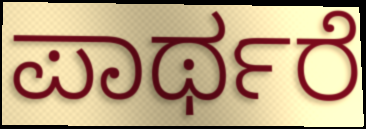
ಪಾರ್ಥರೆ